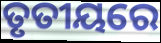
ତୃତୀୟରେ